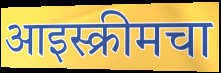
आइस्क्रीमचा